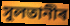
সুলতানীৰ